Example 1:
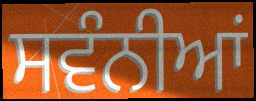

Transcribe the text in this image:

ਸਵੰਨੀਆਂ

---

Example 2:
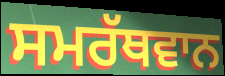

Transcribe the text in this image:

ਸਮਰੱਥਵਾਨ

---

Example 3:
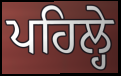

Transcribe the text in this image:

ਪਹਿਲ੍ਹੇ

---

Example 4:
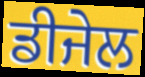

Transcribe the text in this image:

ਡੀਜੇਲ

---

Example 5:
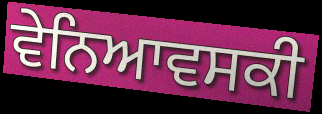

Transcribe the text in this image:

ਵੇਨਿਆਵਸਕੀ